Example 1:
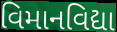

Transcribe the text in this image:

વિમાનવિદ્યા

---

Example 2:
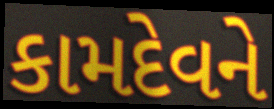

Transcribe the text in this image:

કામદેવને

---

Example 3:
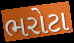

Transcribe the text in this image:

ભરોટા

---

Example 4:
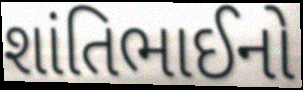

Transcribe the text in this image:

શાંતિભાઈનો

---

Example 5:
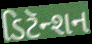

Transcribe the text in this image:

ડિટૅન્શન